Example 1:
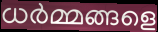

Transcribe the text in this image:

ധർമ്മങ്ങളെ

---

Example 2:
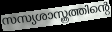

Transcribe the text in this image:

സസ്യശാസ്ത്രത്തിന്റെ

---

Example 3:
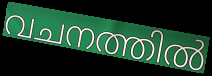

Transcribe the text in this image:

വചനത്തിൽ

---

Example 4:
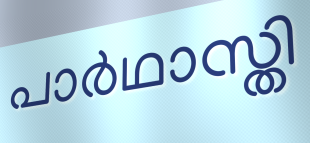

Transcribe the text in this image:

പാർഥാസ്തി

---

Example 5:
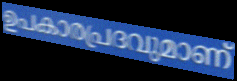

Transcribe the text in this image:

ഉപകാരപ്രദവുമാണ്